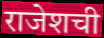
राजेशची